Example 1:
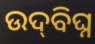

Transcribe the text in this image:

ଉଦ୍‍ବିଘ୍ନ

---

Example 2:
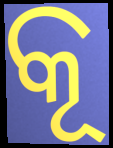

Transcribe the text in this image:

କୂ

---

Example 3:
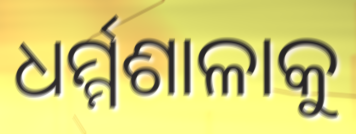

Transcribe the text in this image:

ଧର୍ମ୍ମଶାଳାକୁ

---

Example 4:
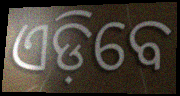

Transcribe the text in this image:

ଏଡ଼ିବେ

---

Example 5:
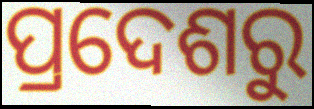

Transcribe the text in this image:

ପ୍ରଦେଶରୁ